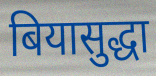
बियासुद्धा